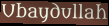
Ubaydullah